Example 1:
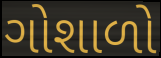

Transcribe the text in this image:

ગોશાળો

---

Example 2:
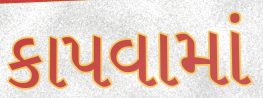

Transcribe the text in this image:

કાપવામાં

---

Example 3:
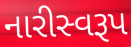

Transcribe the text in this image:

નારીસ્વરૂપ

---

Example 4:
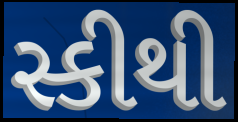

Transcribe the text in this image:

સ્કીથી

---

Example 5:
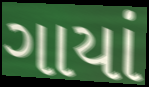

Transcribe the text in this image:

ગાયાં